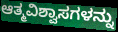
ಆತ್ಮವಿಶ್ವಾಸಗಳನ್ನು